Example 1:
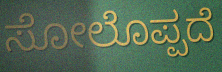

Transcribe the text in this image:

ಸೋಲೊಪ್ಪದೆ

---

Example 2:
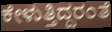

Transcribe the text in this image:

ಕೇಳುತ್ತಿದ್ದರಂತೆ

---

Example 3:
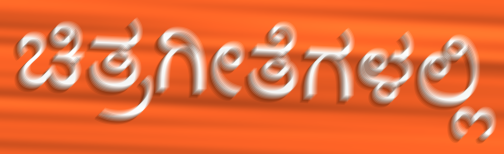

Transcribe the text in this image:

ಚಿತ್ರಗೀತೆಗಳಲ್ಲಿ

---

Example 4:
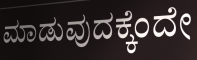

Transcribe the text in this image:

ಮಾಡುವುದಕ್ಕೆಂದೇ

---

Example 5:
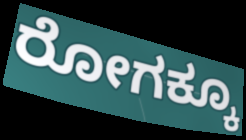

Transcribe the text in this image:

ರೋಗಕ್ಕೂ